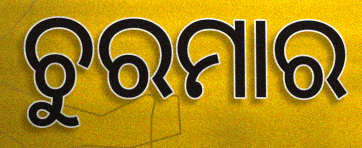
ଚୁରମାର